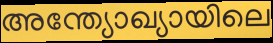
അന്ത്യോഖ്യായിലെ